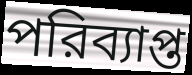
পরিব্যাপ্ত